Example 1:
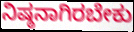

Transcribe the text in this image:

ನಿಷ್ಠನಾಗಿರಬೇಕು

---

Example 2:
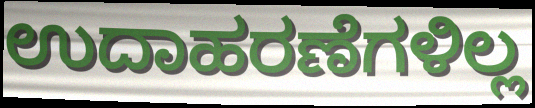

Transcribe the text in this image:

ಉದಾಹರಣೆಗಳಿಲ್ಲ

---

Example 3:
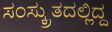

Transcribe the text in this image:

ಸಂಸ್ಕ್ರುತದಲ್ಲಿದ್ದ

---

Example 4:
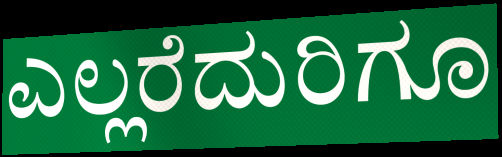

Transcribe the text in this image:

ಎಲ್ಲರೆದುರಿಗೂ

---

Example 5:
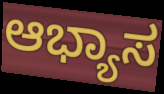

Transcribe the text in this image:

ಆಭ್ಯಾಸ